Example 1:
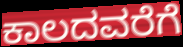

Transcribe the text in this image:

ಕಾಲದವರೆಗೆ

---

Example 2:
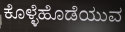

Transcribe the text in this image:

ಕೊಳ್ಳೆಹೊಡೆಯುವ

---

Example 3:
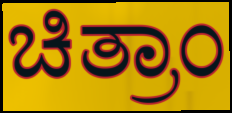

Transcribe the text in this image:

ಚಿತ್ರಾಂ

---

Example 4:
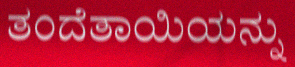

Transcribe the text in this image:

ತಂದೆತಾಯಿಯನ್ನು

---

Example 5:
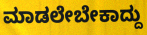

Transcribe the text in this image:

ಮಾಡಲೇಬೇಕಾದ್ದು